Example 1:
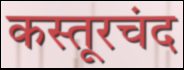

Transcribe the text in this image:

कस्तूरचंद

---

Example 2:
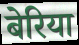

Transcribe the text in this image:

बेरिया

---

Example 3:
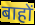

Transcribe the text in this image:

बाहों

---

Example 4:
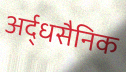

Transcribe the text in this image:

अर्द्धसैनिक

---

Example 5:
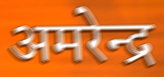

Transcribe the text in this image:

अमरेन्द्र